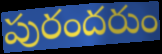
పురందరుం